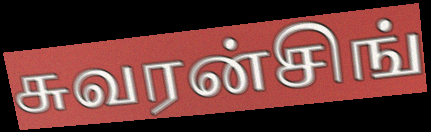
சுவரன்சிங்